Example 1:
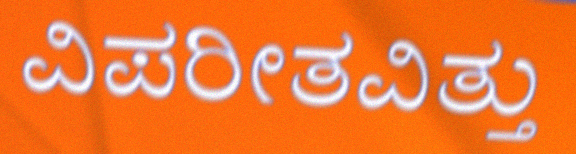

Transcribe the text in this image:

ವಿಪರೀತವಿತ್ತು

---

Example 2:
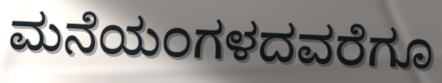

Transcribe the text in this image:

ಮನೆಯಂಗಳದವರೆಗೂ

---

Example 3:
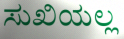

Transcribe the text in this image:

ಸುಖಿಯಲ್ಲ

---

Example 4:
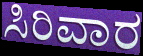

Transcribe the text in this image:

ಸಿರಿವಾರ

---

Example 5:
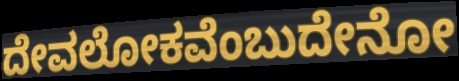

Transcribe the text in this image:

ದೇವಲೋಕವೆಂಬುದೇನೋ